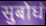
सुबोधं